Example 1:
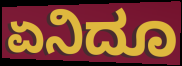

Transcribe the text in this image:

ಏನಿದೂ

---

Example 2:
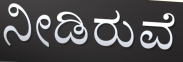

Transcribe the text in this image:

ನೀಡಿರುವೆ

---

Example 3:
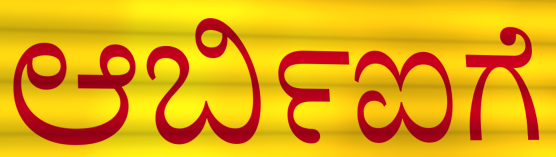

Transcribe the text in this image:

ಆರ್ಬಿಐಗೆ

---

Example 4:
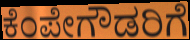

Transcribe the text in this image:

ಕೆಂಪೇಗೌಡರಿಗೆ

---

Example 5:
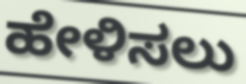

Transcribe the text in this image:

ಹೇಳಿಸಲು